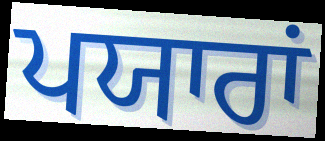
ਪਯਾਰਾਂ